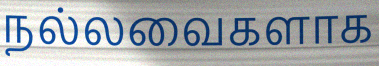
நல்லவைகளாக